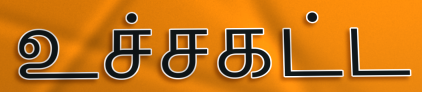
உச்சகட்ட